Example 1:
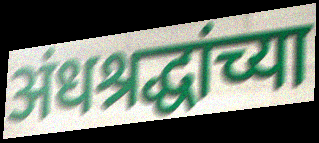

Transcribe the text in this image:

अंधश्रद्धांच्या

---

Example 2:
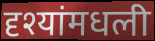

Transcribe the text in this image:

दृश्यांमधली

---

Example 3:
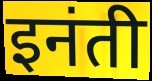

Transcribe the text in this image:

इनंती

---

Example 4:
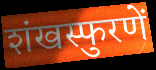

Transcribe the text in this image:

शंखस्फुरणें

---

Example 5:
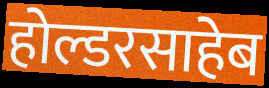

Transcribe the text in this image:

होल्डरसाहेब